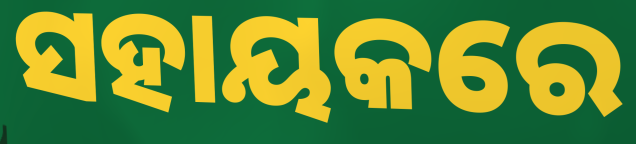
ସହାୟକରେ